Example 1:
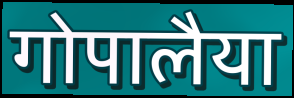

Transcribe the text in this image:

गोपालैया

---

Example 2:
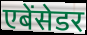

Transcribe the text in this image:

एबेंसेडर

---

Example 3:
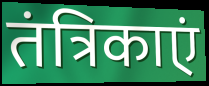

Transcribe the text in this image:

तंत्रिकाएं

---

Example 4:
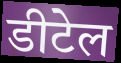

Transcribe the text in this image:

डीटेल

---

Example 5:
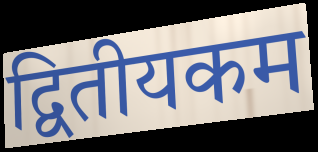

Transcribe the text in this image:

द्वितीयकम